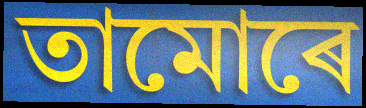
তামোৰে